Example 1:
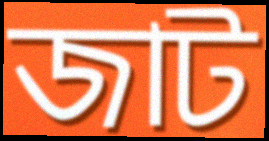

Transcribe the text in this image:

জাট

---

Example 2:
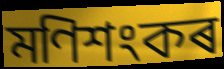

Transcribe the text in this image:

মণিশংকৰ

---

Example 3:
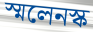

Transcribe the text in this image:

স্মলেনস্ক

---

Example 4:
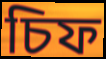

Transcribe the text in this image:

চিফ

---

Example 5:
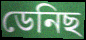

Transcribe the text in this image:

ডেনিছ